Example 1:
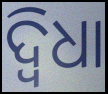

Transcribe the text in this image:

ଦ୍ବିଧା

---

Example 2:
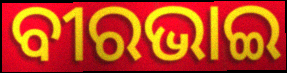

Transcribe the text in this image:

ବୀରଭାଇ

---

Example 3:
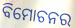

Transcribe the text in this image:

ବିମୋଚନର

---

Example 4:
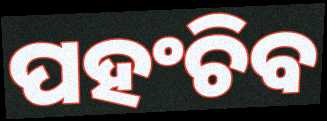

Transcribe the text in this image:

ପହଂଚିବ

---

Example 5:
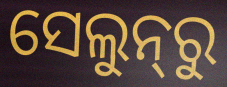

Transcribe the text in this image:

ସେଲୁନ୍‌ରୁ